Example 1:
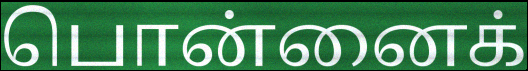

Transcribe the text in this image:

பொன்னைக்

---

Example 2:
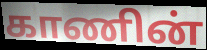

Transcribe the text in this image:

காணின்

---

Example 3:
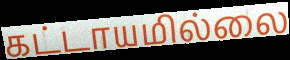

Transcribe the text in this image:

கட்டாயமில்லை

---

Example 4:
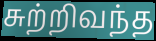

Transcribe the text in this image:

சுற்றிவந்த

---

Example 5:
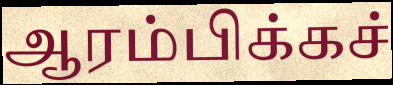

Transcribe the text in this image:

ஆரம்பிக்கச்